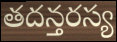
తదన్తరస్య